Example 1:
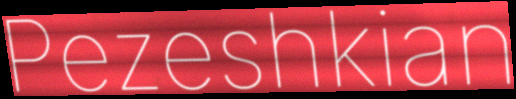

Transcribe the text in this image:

Pezeshkian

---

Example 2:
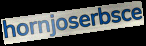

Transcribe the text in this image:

hornjoserbsce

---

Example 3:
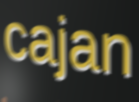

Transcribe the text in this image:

cajan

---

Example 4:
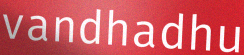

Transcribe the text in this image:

vandhadhu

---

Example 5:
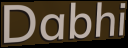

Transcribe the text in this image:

Dabhi